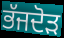
ਭੱਜਦੋੜ